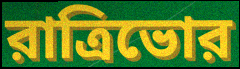
রাত্রিভোর